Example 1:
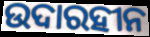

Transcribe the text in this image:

ଉଦାରହୀନ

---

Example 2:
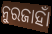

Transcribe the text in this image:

ନୁରଜାହାଁ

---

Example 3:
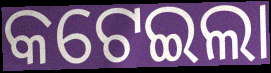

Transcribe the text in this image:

କଟେଇଲା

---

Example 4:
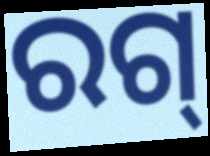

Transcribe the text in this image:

ରଗ୍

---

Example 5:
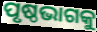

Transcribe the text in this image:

ପୃଷ୍ଠଭାଗକୁ